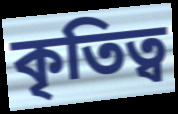
কৃতিত্ব